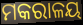
ମକରାଳୟ